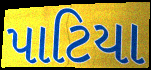
પાટિયા